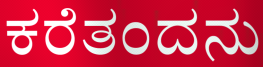
ಕರೆತಂದನು